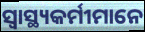
ସ୍ବାସ୍ଥ୍ୟକର୍ମୀମାନେ